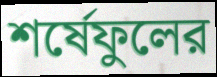
শর্ষেফুলের